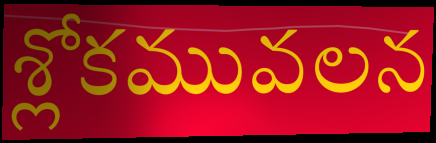
శ్లోకమువలన